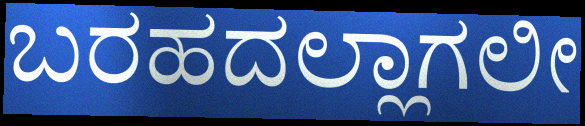
ಬರಹದಲ್ಲಾಗಲೀ